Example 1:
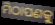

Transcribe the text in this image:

ମିଠାପଣକୁ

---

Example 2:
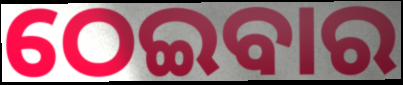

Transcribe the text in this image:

ଠେଇବାର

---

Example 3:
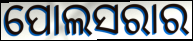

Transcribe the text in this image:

ପୋଲସରାର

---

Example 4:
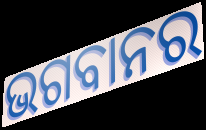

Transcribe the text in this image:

ଭଗବାନର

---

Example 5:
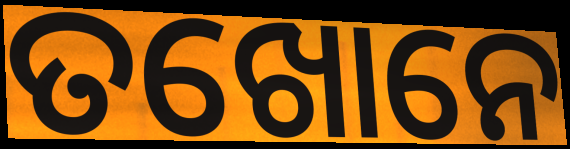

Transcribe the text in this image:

ତଖୋନେ